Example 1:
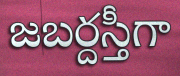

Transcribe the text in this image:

జబర్దస్తీగా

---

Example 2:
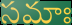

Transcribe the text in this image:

సమాః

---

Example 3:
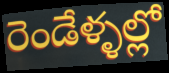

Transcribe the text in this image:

రెండేళ్ళల్లో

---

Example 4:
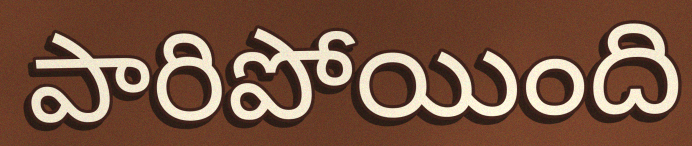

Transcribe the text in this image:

పారిపోయింది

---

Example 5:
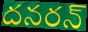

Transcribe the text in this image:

దనరన్